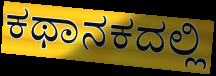
ಕಥಾನಕದಲ್ಲಿ